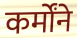
कर्मोंने